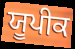
ਯੂਪੀਕ